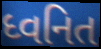
ધ્વનિત